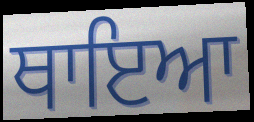
ਥਾਇਆ